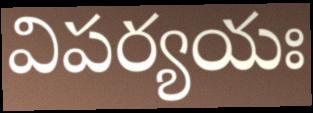
విపర్యయః